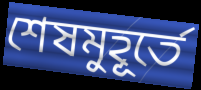
শেষমুহূর্তে